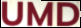
UMD